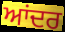
ਆਂਦਰ